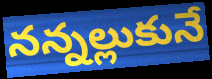
నన్నల్లుకునే